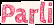
Parli